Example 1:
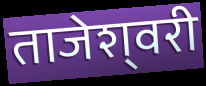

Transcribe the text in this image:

ताजेश्वरी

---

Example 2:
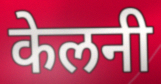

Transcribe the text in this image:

केलनी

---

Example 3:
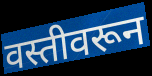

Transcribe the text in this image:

वस्तीवरून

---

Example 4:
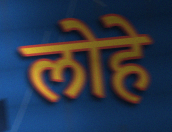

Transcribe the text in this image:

लोहे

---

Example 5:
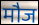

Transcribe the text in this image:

मौज